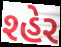
શ્હેર